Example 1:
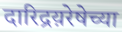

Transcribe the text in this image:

दारिद्रय़रेषेच्या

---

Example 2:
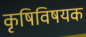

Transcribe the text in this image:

कृषिविषयक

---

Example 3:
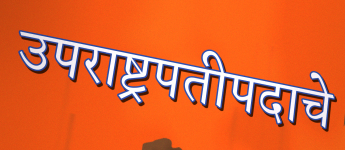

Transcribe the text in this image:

उपराष्ट्रपतीपदाचे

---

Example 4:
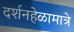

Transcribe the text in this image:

दर्शनहेळामात्रे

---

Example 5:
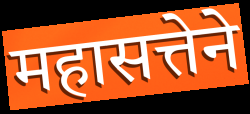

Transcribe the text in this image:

महासत्तेने